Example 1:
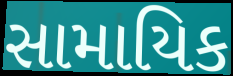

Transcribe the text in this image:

સામાયિક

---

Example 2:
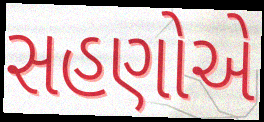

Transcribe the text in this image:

સહણોએ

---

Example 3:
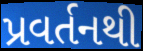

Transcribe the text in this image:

પ્રવર્તનથી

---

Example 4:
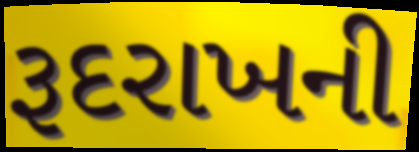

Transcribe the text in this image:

રૂદરાખની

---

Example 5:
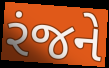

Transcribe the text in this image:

રંજને